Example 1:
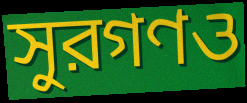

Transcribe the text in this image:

সুরগণও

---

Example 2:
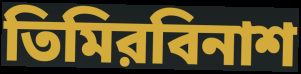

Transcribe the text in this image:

তিমিরবিনাশ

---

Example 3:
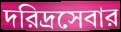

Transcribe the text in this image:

দরিদ্রসেবার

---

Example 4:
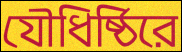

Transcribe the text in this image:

যৌধিষ্ঠিরে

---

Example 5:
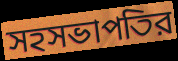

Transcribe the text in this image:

সহসভাপতির